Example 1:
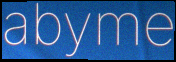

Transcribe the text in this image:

abyme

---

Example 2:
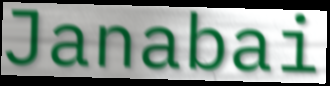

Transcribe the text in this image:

Janabai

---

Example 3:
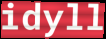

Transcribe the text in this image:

idyll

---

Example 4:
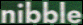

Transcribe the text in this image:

nibble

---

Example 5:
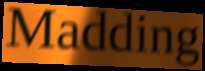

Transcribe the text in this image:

Madding